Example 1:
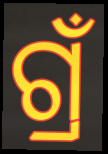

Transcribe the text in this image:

ଗ୍ରଁ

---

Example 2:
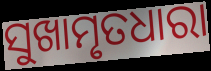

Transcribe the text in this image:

ସୁଖାମୃତଧାରା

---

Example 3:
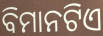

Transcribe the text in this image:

ବିମାନଟିଏ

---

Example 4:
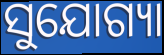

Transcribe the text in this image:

ସୁଯୋଗ୍ୟା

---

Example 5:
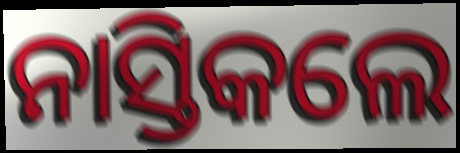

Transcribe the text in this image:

ନାସ୍ତିକଲେ